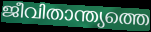
ജീവിതാന്ത്യത്തെ